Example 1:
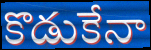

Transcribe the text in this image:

కొడుకేనా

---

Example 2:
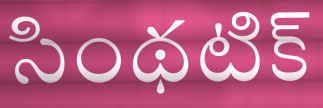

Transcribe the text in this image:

సింథటిక్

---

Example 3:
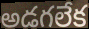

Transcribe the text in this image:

అడగలేక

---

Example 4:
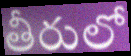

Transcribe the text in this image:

తీరులో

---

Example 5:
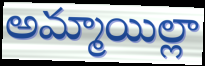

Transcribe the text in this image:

అమ్మాయిల్లా